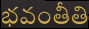
భవంతీతి